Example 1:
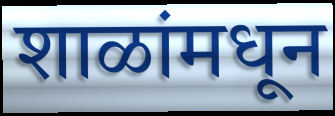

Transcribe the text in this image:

शाळांमधून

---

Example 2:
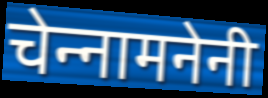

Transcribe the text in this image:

चेन्नामनेनी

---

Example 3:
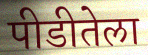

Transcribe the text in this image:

पीडीतेला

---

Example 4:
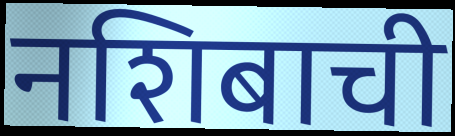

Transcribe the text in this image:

नशिबाची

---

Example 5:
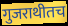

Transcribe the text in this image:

गुजराथीतच